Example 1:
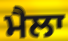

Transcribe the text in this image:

ਮੈਲਾ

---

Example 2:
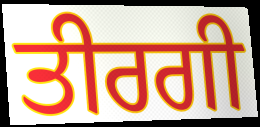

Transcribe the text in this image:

ਤੀਰਗੀ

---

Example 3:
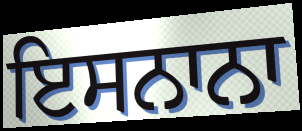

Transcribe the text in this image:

ਇਸਨਾਨਾ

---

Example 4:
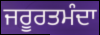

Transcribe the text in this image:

ਜਰੂਰਤਮੰਦਾ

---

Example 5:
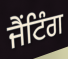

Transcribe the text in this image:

ਜੈਂਟਿੰਗ